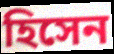
হিসেন